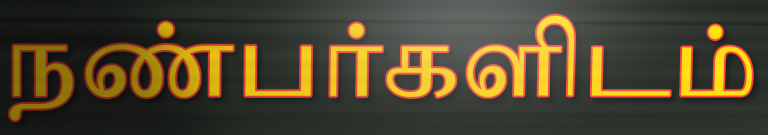
நண்பர்களிடம்